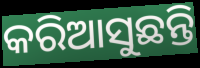
କରିଆସୁଛନ୍ତି